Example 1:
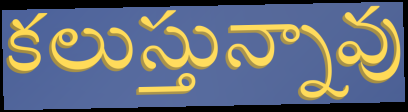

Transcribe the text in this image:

కలుస్తున్నావు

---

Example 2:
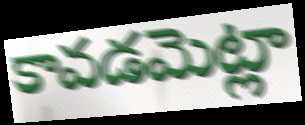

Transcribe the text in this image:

కావడమెట్లా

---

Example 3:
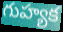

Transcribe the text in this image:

గుహ్యక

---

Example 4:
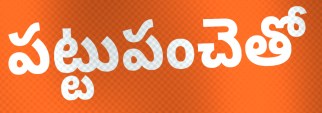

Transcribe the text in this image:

పట్టుపంచెతో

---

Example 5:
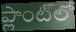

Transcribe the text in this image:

ప్లాంట్‌లో